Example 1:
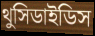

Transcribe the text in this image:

থুসিডাইডিস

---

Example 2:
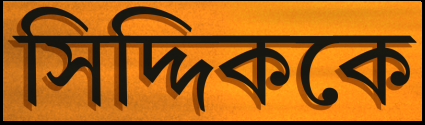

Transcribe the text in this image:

সিদ্দিককে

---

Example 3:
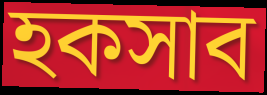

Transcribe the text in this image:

হকসাব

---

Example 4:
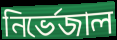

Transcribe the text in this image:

নির্ভেজাল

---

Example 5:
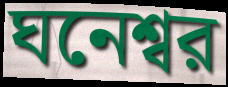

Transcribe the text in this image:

ঘনেশ্বর